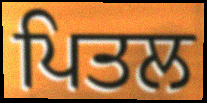
ਪਿਤਲ